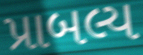
પ્રાબલ્ય